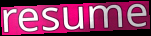
resume